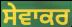
ਸੇਵਾਕਰ